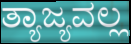
ತ್ಯಾಜ್ಯವಲ್ಲ